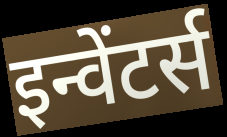
इन्वेंटर्स